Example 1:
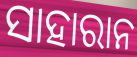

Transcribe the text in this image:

ସାହାରାନ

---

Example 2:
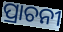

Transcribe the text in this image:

ପ୍ରାଚନୀ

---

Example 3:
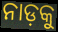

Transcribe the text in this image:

ନାଡ଼କୁ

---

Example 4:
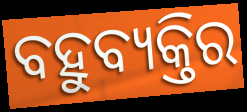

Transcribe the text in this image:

ବହୁବ୍ୟକ୍ତିର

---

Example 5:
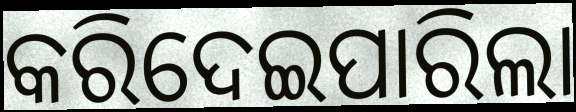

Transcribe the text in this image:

କରିଦେଇପାରିଲା